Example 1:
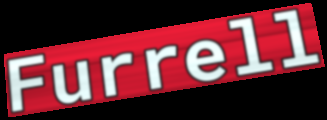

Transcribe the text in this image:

Furrell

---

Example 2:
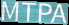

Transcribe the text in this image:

MTPA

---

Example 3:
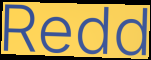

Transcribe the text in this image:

Redd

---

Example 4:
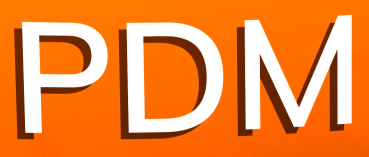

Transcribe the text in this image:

PDM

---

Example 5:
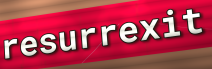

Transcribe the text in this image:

resurrexit